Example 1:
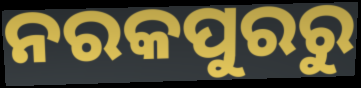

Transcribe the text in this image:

ନରକପୁରରୁ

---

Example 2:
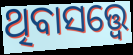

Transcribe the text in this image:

ଥିବାସତ୍ତ୍ଵେ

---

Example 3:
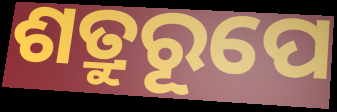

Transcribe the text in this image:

ଶତ୍ରୁରୂପେ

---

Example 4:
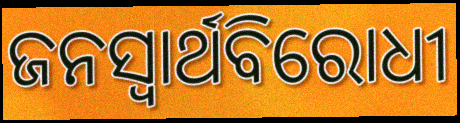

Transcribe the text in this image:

ଜନସ୍ଵାର୍ଥବିରୋଧୀ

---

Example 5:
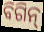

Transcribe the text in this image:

ବିଗିନ୍